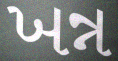
ખન્ન